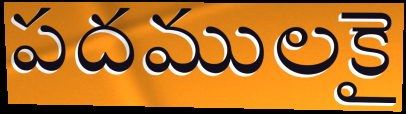
పదములకై